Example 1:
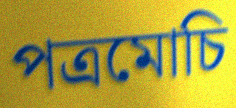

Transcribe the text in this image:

পত্রমোচি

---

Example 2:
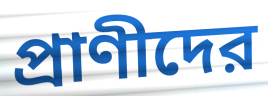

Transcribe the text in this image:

প্রাণীদের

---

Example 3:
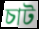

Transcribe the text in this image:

চাট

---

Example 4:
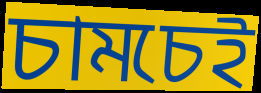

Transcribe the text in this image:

চামচেই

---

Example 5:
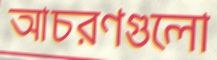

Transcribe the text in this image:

আচরণগুলো